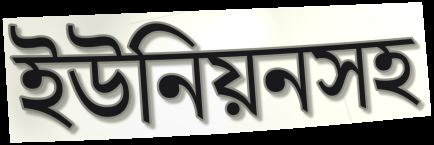
ইউনিয়নসহ